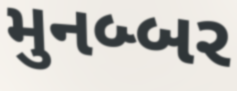
મુનબ્બર